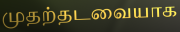
முதற்தடவையாக